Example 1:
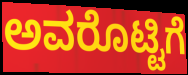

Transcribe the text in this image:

ಅವರೊಟ್ಟಿಗೆ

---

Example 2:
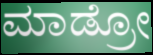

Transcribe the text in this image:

ಮಾಡ್ರೋ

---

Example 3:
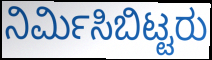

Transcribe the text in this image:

ನಿರ್ಮಿಸಿಬಿಟ್ಟರು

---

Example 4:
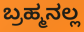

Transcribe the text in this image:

ಬ್ರಹ್ಮನಲ್ಲ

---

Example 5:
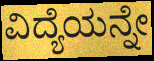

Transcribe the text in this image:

ವಿದ್ಯೆಯನ್ನೇ